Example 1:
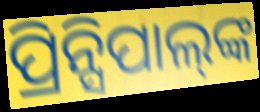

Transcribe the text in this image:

ପ୍ରିନ୍ସିପାଲ୍‍ଙ୍କ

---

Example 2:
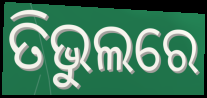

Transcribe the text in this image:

ତିଭୁଲରେ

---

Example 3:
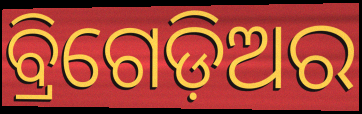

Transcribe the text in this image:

ବ୍ରିଗେଡ଼ିଅର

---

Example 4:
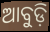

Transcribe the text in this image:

ଆବୁଡ଼ି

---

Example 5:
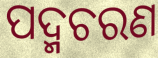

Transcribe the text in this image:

ପଦ୍ମଚରଣ